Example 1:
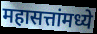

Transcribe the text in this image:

महासत्तांमध्ये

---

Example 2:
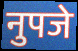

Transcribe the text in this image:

नुपजे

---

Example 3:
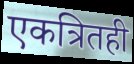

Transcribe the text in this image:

एकत्रितही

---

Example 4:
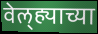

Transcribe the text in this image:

वेल्ह्याच्या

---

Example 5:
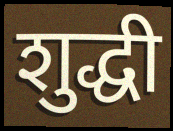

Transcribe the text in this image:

शुद्धी